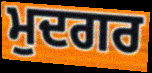
ਮੁਦਗਰ